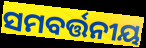
ସମବର୍ତ୍ତନୀୟ